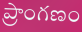
ప్రాంగణం